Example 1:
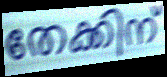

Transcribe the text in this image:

തേക്കിന്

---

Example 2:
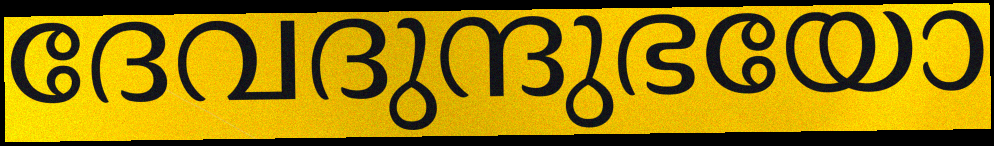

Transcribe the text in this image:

ദേവദുന്ദുഭയോ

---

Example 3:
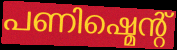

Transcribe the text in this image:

പണിഷ്മെന്റ്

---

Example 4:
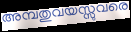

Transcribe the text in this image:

അമ്പതുവയസ്സുവരെ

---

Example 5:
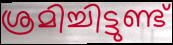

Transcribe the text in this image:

ശ്രമിച്ചിട്ടുണ്ട്